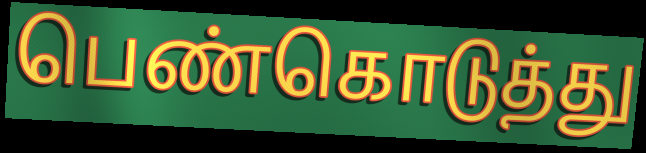
பெண்கொடுத்து